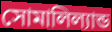
সোমালিল্যান্ড